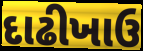
દાઢીખાઉ